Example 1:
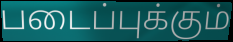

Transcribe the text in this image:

படைப்புக்கும்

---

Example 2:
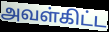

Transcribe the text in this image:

அவள்கிட்ட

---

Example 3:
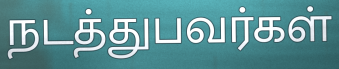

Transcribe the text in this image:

நடத்துபவர்கள்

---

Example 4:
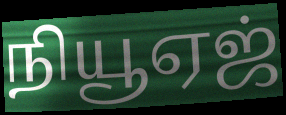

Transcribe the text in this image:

நியூஏஜ்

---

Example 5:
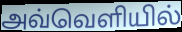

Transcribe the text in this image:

அவ்வெளியில்